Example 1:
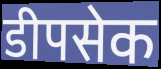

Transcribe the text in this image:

डीपसेक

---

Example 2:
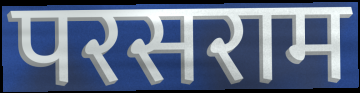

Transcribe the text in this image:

परसराम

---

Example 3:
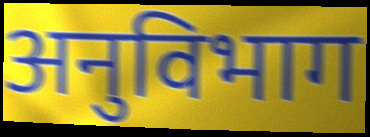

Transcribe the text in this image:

अनुविभाग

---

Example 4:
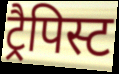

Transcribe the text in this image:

ट्रैपिस्ट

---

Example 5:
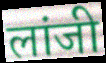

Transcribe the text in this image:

लांजी